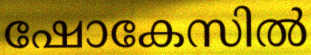
ഷോകേസിൽ